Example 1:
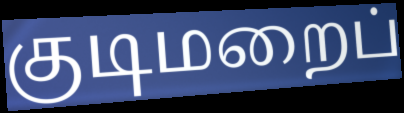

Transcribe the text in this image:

குடிமறைப்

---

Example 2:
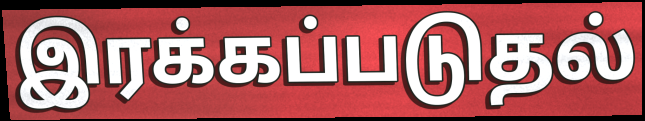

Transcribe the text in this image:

இரக்கப்படுதல்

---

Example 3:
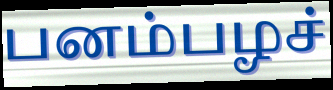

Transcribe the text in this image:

பனம்பழச்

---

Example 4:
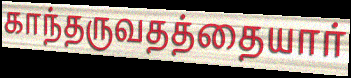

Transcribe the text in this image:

காந்தருவதத்தையார்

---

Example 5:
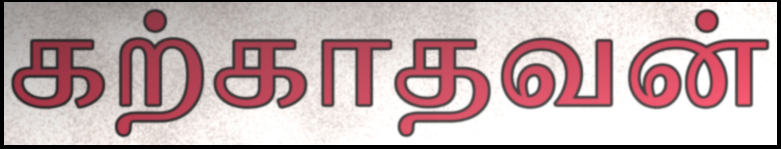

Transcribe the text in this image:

கற்காதவன்